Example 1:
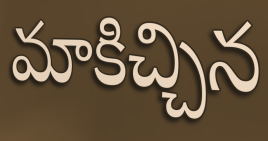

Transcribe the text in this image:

మాకిచ్చిన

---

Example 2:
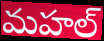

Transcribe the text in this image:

మహల్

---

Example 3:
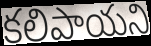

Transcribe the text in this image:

కలిపాయని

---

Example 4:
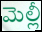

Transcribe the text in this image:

మెల్లీ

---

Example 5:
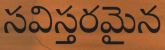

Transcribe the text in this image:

సవిస్తరమైన